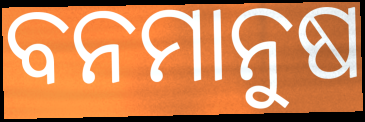
ବନମାନୁଷ